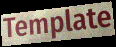
Template